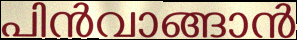
പിൻവാങ്ങാൻ